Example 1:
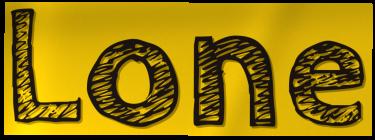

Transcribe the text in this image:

Lone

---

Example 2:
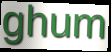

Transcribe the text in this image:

ghum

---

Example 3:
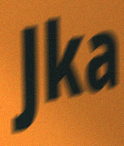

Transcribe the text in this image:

Jka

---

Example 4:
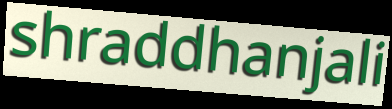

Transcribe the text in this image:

shraddhanjali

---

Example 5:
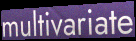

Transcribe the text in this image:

multivariate